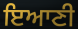
ਇਆਣੀ